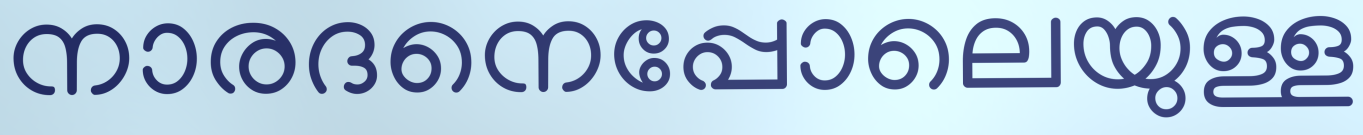
നാരദനെപ്പോലെയുള്ള